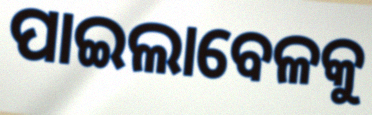
ପାଇଲାବେଳକୁ